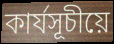
কাৰ্যসূচীয়ে